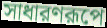
সাধারণরূপে